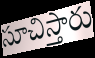
సూచిస్తారు